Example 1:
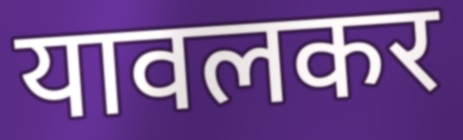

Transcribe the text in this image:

यावलकर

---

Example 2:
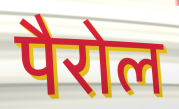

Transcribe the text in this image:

पैरोल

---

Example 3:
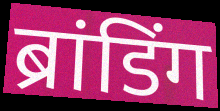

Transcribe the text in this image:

ब्रांडिंग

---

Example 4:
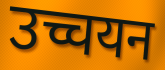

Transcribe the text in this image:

उच्चयन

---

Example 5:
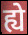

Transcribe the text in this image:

ह्ये